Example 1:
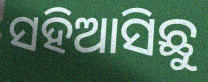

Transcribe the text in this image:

ସହିଆସିଛୁ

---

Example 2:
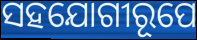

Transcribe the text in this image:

ସହଯୋଗୀରୂପେ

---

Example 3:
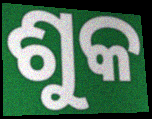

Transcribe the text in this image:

ଶୁକ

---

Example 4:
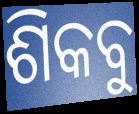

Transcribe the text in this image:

ଶିକବୁ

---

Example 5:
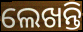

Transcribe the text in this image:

ଲେଖନ୍ତି